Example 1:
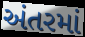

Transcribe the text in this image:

અંતરમાં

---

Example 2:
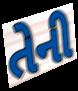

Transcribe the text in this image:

તેની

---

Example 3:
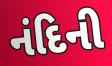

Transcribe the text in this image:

નંદિની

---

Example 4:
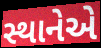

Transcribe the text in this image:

સ્થાનેએ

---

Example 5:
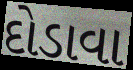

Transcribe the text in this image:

દોડાવા